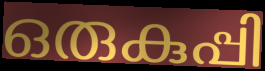
ഒരുകുപ്പി